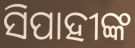
ସିପାହୀଙ୍କ